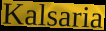
Kalsaria